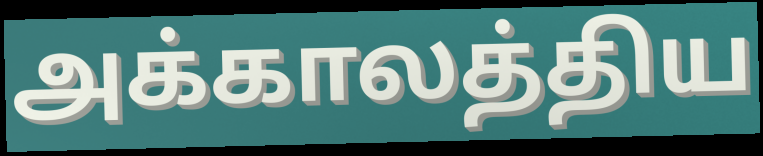
அக்காலத்திய